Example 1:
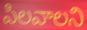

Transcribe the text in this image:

పిలవాలని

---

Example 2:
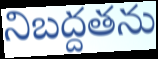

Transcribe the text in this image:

నిబద్దతను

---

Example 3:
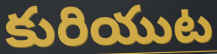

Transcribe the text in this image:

కురియుట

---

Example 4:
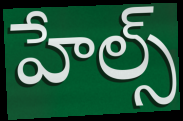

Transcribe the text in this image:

హేల్స్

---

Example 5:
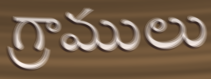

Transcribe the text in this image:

గ్రాములు